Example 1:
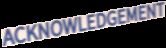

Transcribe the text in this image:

ACKNOWLEDGEMENT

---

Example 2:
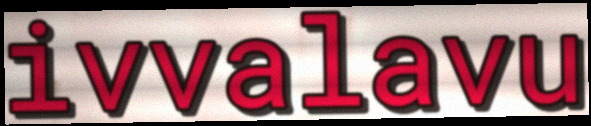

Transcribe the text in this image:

ivvalavu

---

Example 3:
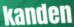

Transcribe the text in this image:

kanden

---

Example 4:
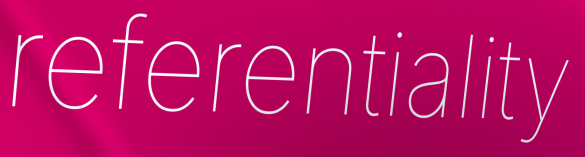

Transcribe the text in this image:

referentiality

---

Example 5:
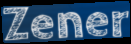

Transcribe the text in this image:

Zener